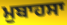
ਮੁਬਾਹਸਾ